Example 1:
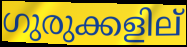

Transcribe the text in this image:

ഗുരുക്കളില്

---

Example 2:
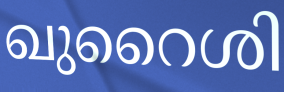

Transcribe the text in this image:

ഖുറൈശി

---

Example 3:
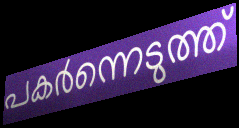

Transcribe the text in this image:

പകർന്നെടുത്ത്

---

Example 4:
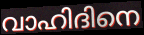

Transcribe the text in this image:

വാഹിദിനെ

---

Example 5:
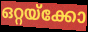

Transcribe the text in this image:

ഒറ്റയ്ക്കോ